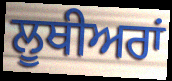
ਲੂਥੀਅਰਾਂ